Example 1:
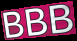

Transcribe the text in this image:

BBB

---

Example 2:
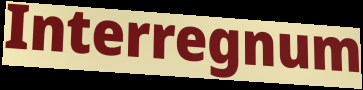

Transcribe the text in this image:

Interregnum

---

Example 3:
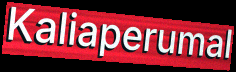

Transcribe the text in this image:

Kaliaperumal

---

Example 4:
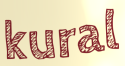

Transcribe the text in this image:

kural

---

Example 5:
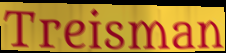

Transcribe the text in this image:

Treisman